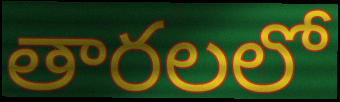
తారలలో